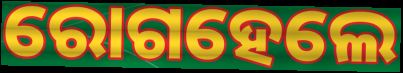
ରୋଗହେଲେ